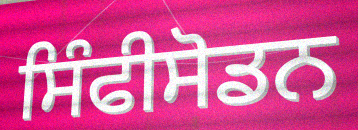
ਸਿੰਫੀਸੋਡਨ